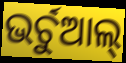
ଭର୍ଚୁଆଲ୍